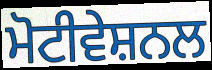
ਮੋਟੀਵੇਸ਼ਨਲ